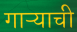
गाऱ्याची